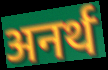
अनर्थ